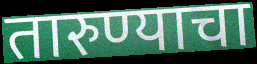
तारुण्याचा